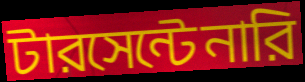
টারসেন্টেনারি